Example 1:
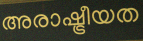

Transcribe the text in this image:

അരാഷ്ട്രീയത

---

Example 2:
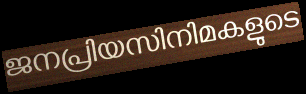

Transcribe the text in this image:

ജനപ്രിയസിനിമകളുടെ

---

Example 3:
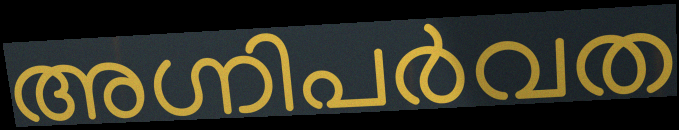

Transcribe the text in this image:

അഗ്നിപർവത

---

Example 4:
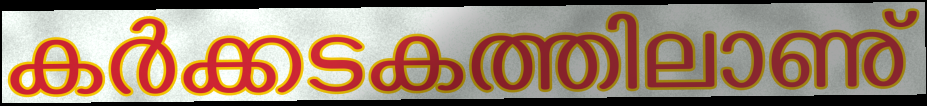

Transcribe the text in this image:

കർക്കടകത്തിലാണു്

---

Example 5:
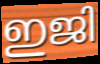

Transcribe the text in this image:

ഇജി